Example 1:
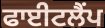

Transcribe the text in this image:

ਫਾਈਟਲੈਂਪ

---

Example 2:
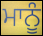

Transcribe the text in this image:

ਮਾਨੂੰ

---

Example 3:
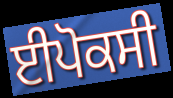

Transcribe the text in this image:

ਈਪੋਕਸੀ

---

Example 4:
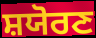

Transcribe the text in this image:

ਸ਼ਯੋਰਣ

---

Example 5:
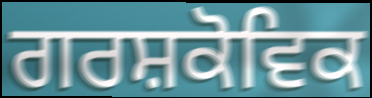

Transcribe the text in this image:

ਗਰਸ਼ਕੋਵਿਕ